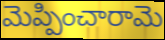
మెప్పించారామె